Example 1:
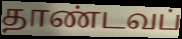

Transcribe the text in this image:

தாண்டவப்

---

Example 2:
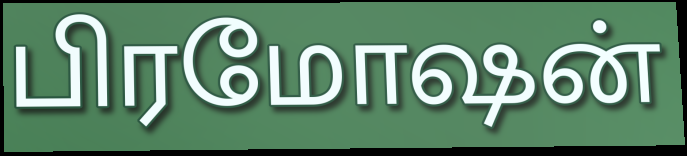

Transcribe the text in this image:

பிரமோஷன்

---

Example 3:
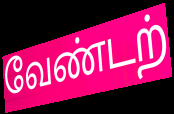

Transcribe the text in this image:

வேண்டற்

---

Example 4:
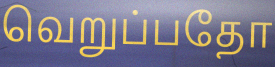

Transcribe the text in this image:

வெறுப்பதோ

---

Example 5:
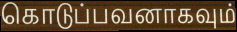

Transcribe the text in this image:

கொடுப்பவனாகவும்